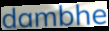
dambhe